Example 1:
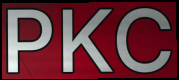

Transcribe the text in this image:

PKC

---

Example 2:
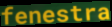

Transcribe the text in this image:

fenestra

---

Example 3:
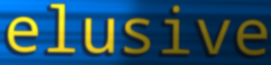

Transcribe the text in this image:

elusive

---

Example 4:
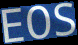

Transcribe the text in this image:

EOS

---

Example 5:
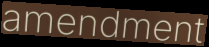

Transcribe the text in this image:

amendment